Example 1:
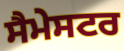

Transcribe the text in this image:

ਸੈਮੇਸਟਰ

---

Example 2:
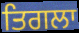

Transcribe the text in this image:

ਤਿਗਲਾ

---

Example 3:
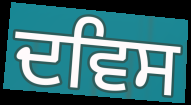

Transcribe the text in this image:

ਦਵਿਸ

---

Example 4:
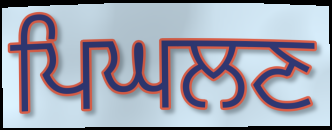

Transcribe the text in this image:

ਪਿਘਲਣ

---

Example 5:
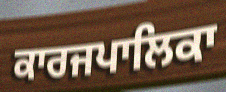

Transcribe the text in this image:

ਕਾਰਜਪਾਲਿਕਾ